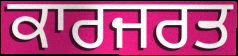
ਕਾਰਜਰਤ